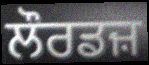
ਲੌਰਡਜ਼